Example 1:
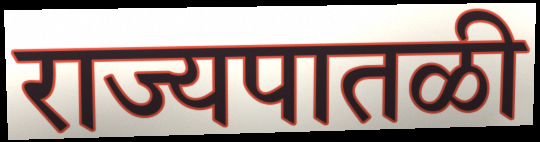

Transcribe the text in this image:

राज्यपातळी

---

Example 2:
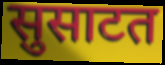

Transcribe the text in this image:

सुसाटत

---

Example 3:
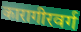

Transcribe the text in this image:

कारागीरवर्ग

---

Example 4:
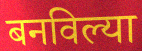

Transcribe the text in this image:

बनविल्या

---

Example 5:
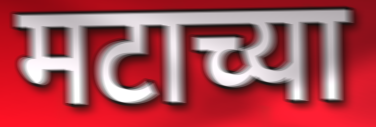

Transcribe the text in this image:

मटाच्या